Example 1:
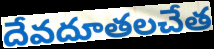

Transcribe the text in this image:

దేవదూతలచేత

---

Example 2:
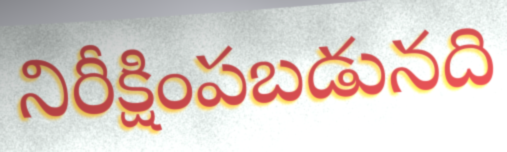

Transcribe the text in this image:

నిరీక్షింపబడునది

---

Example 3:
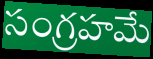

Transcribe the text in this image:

సంగ్రహమే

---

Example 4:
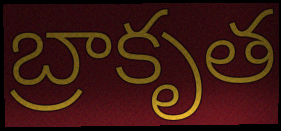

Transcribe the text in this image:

బ్రాకృత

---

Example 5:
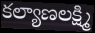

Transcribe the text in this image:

కల్యాణలక్ష్మి